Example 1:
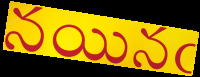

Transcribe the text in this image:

నయినఁ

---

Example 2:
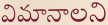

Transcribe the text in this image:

విమానాలని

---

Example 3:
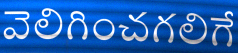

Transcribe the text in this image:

వెలిగించగలిగే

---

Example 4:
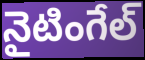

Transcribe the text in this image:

నైటింగేల్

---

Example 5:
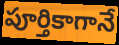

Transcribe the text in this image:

పూర్తికాగానే